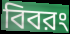
বিবরং